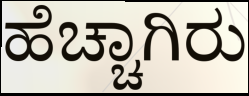
ಹೆಚ್ಚಾಗಿರು